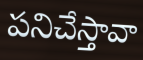
పనిచేస్తావా